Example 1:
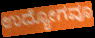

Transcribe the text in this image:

ಉದ್ಯೋಗವೂ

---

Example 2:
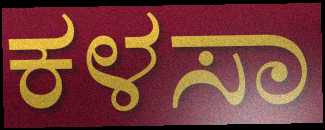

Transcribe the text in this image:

ಕಳಸಾ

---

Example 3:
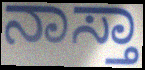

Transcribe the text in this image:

ನಾಸ್ತಾ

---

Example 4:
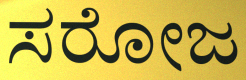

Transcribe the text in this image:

ಸರೋಜ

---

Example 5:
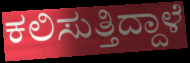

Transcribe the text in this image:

ಕಲಿಸುತ್ತಿದ್ದಾಳೆ